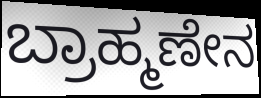
ಬ್ರಾಹ್ಮಣೇನ